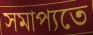
সমাপ্যতে